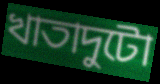
খাতাদুটো